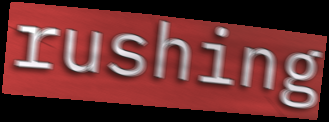
rushing